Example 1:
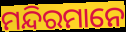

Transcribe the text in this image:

ମନ୍ଦିରମାନେ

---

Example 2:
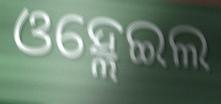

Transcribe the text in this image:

ଓହ୍ଲେଇଲ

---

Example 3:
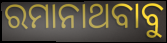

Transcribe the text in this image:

ରମାନାଥବାବୁ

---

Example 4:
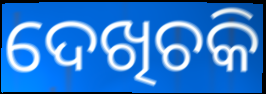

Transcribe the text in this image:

ଦେଖିଚକି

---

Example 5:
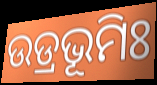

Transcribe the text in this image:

ଉଡ୍ରଭୂମିଃ